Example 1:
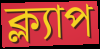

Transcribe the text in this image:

ক্ল্যাপ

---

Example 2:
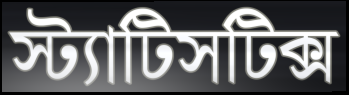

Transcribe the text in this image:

স্ট্যাটিসটিক্স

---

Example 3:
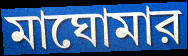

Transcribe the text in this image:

মাঘোমার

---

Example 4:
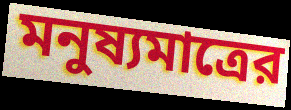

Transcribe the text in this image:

মনুষ্যমাত্রের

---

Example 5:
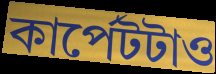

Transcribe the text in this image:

কার্পেটটাও